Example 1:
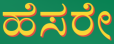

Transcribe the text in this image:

ಹೆಸರೇ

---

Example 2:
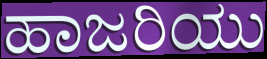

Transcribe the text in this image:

ಹಾಜರಿಯು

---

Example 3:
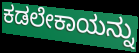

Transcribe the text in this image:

ಕಡಲೇಕಾಯನ್ನು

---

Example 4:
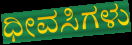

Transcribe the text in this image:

ಧೀವಸಿಗಳು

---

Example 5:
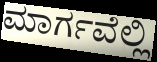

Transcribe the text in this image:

ಮಾರ್ಗವೆಲ್ಲಿ